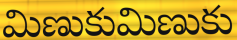
మిణుకుమిణుకు